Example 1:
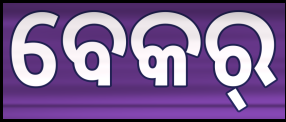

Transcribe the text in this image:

ବେକର୍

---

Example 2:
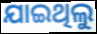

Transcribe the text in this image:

ଯାଇଥିଲୁ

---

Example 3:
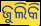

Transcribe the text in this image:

ଜୁଲିକି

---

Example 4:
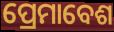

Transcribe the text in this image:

ପ୍ରେମାବେଶ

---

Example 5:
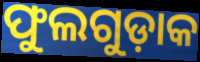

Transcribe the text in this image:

ଫୁଲଗୁଡ଼ାକ